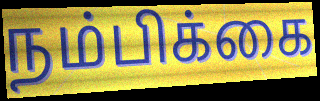
நம்பிக்கை